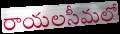
రాయలసీమలో